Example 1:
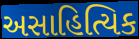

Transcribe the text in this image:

અસાહિત્યિક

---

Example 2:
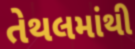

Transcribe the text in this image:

તેથલમાંથી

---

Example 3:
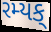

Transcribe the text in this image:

રમ્યક્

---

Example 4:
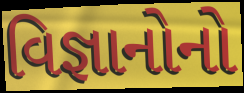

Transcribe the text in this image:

વિજ્ઞાનોનો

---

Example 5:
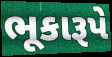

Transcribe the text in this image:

ભૂકારૂપે